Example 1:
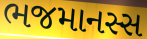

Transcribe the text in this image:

ભજમાનસ્સ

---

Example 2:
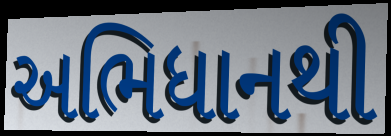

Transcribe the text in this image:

અભિધાનથી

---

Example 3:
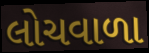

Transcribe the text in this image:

લોચવાળા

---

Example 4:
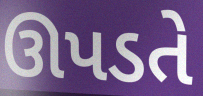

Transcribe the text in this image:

ઊપડતે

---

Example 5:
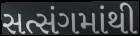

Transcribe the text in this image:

સત્સંગમાંથી